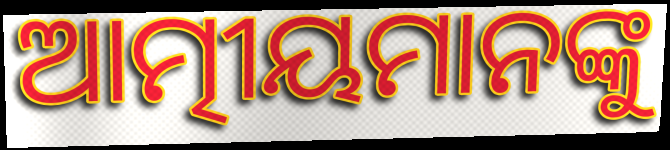
ଆତ୍ମୀୟମାନଙ୍କୁ